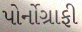
પોર્નોગ્રાફી